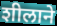
शीलाने